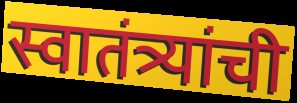
स्वातंत्र्यांची